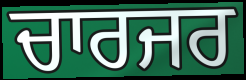
ਚਾਰਜਰ